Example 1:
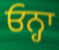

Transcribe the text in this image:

ਓਨ੍ਹਾ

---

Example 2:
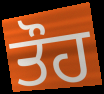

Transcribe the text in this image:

ਤੌਹ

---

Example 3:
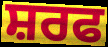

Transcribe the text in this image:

ਸ਼ਰਫ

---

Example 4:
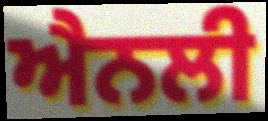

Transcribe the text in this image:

ਐਨਲੀ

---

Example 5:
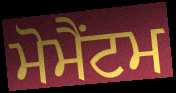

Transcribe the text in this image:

ਮੋਮੈਂਟਮ